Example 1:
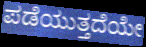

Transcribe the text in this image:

ಪಡೆಯುತ್ತದೆಯೇ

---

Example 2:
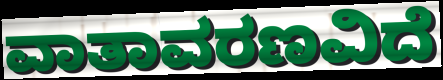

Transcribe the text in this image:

ವಾತಾವರಣವಿದೆ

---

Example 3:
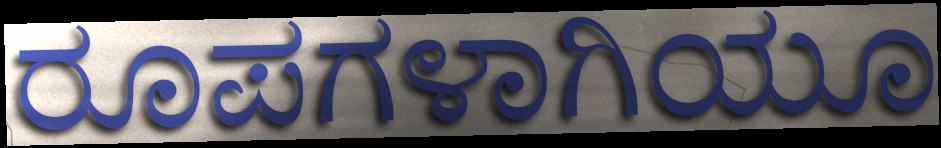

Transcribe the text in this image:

ರೂಪಗಳಾಗಿಯೂ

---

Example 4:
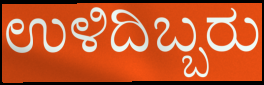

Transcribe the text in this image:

ಉಳಿದಿಬ್ಬರು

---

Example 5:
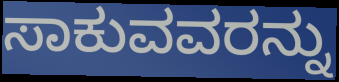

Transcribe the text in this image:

ಸಾಕುವವರನ್ನು